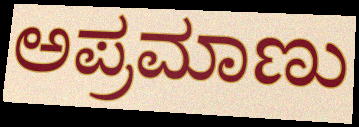
ಅಪ್ರಮಾಣು